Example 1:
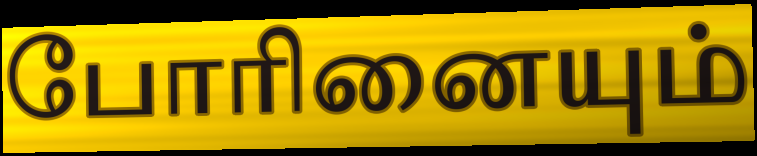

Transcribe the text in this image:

போரினையும்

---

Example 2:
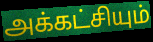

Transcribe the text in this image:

அக்கட்சியும்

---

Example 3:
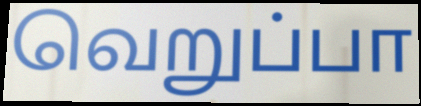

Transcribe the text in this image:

வெறுப்பா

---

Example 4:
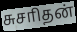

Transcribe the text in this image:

சுசரிதன்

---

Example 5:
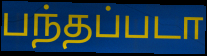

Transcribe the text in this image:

பந்தப்படா